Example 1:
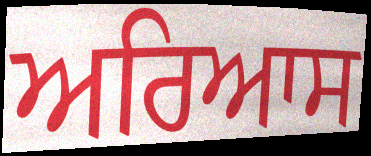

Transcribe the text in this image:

ਅਰਿਆਸ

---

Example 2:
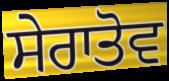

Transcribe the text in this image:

ਸੇਰਾਤੋਵ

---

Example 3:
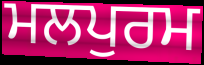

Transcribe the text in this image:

ਮਲਪੁਰਮ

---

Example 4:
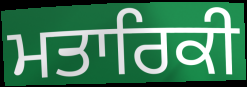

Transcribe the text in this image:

ਮਤਾਰਿਕੀ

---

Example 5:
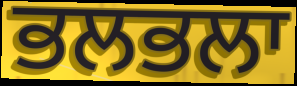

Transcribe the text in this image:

ਭਲਭਲਾ